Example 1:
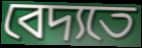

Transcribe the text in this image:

বেদ্যতে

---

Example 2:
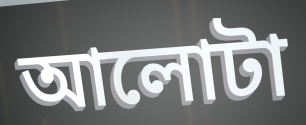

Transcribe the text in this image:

আলোটা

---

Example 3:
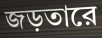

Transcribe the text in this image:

জড়তারে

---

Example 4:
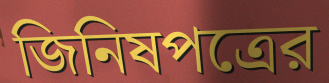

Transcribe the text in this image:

জিনিষপত্রের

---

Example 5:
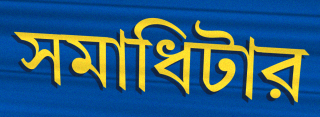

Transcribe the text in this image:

সমাধিটার